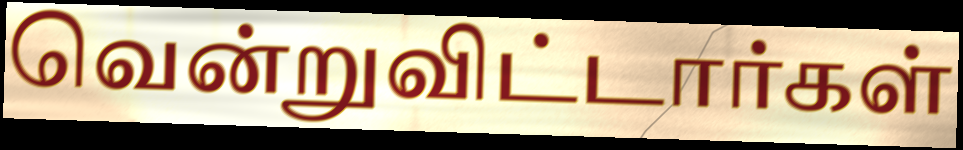
வென்றுவிட்டார்கள்